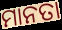
ମାନତା